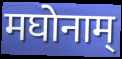
मघोनाम्